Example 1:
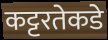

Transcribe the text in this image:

कट्टरतेकडे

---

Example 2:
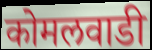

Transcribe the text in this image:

कोमलवाडी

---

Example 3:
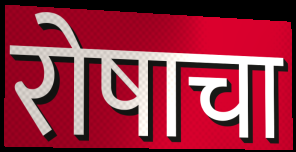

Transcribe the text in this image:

रोषाचा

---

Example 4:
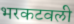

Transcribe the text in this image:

भरकटवली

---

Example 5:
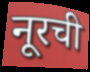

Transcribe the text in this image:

नूरची